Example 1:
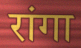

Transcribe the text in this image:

रांगा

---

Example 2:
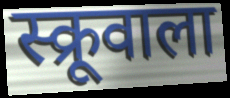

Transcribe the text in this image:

स्क्रूवाला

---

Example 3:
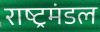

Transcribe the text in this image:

राष्ट्रमंडल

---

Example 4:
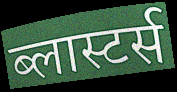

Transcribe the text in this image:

ब्लास्टर्स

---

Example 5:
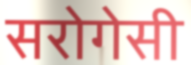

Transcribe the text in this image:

सरोगेसी